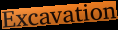
Excavation